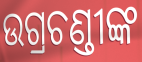
ଉଗ୍ରଚଣ୍ଡୀଙ୍କ